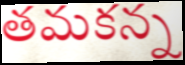
తమకన్న